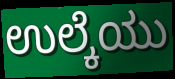
ಉಲ್ಕೆಯು